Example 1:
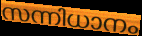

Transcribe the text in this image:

സന്നിധാനം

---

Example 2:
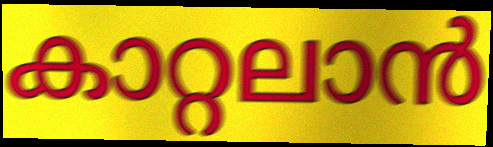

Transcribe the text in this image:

കാറ്റലാൻ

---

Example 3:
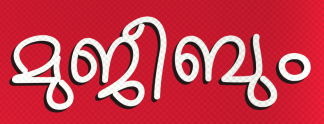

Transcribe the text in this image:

മുജീബും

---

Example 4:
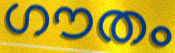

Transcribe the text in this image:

ഗൗതം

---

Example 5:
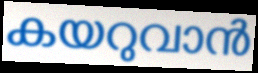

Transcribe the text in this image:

കയറുവാൻ